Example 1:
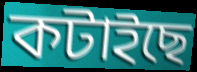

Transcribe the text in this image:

কটাইছে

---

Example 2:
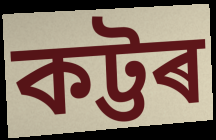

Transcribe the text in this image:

কট্টৰ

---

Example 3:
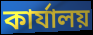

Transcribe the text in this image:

কাৰ্যালয়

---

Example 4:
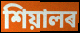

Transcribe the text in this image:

শিয়ালৰ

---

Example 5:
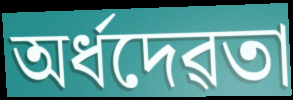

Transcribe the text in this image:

অৰ্ধদেৱতা